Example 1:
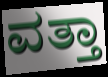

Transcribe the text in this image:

ವತ್ತಾ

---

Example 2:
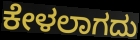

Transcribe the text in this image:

ಕೇಳಲಾಗದು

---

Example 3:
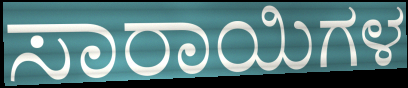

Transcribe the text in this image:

ಸಾರಾಯಿಗಳ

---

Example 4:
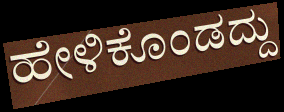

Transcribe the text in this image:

ಹೇಳಿಕೊಂಡದ್ದು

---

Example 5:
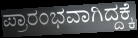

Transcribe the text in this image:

ಪ್ರಾರಂಭವಾಗಿದ್ದಕ್ಕೆ